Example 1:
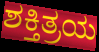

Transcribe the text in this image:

ಶಕ್ತಿತ್ರಯ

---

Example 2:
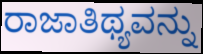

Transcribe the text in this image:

ರಾಜಾತಿಥ್ಯವನ್ನು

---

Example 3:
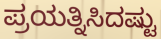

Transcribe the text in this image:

ಪ್ರಯತ್ನಿಸಿದಷ್ಟು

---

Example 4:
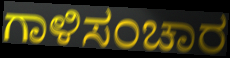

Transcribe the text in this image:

ಗಾಳಿಸಂಚಾರ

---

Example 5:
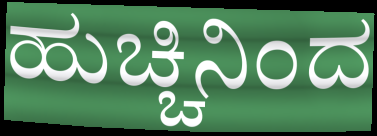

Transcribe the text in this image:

ಹುಚ್ಚಿನಿಂದ